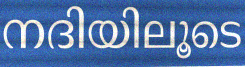
നദിയിലൂടെ